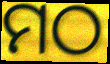
ମଠ